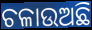
ଚଳାଉଅଛି